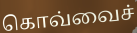
கொவ்வைச்